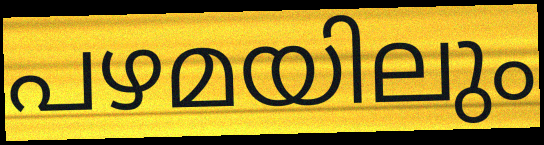
പഴമയിലും